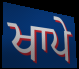
ਖਾਪੇ